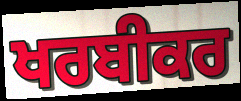
ਖਰਬੀਕਰ